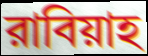
রাবিয়াহ